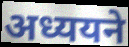
अध्ययने